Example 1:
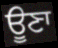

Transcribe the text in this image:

ਊਣਾ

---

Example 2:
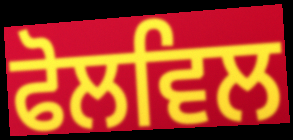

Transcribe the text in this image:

ਫੋਲਵਿਲ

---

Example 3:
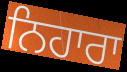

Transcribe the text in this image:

ਨਿਹਾਰਾ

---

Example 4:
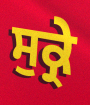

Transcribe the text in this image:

ਸੁਕ੍ਰੇ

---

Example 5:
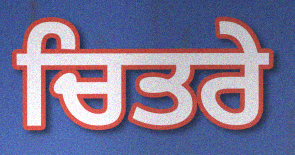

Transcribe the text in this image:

ਚਿਤਰੇ